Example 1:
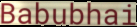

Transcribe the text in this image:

Babubhai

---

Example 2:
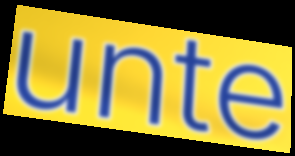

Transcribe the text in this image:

unte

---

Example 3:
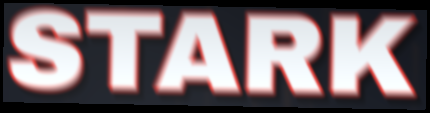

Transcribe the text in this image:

STARK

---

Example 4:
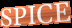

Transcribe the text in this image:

SPICE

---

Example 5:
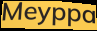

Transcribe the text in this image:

Meyppa